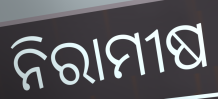
ନିରାମୀଷ